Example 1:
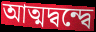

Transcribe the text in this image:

আত্মদ্বন্দ্বে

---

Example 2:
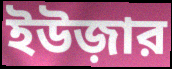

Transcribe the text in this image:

ইউজ়ার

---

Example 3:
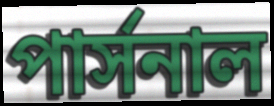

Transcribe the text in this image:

পার্সনাল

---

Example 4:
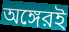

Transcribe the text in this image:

অঙ্গেরই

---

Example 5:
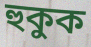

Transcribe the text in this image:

হুকুক